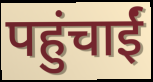
पहुंचाईं